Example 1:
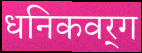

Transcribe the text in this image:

धनिकवर्ग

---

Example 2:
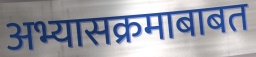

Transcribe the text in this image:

अभ्यासक्रमाबाबत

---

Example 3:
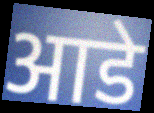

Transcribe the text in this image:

आडे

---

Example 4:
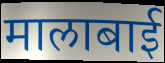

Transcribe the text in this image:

मालाबाई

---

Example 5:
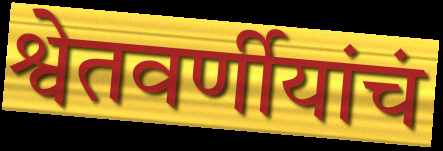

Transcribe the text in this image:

श्वेतवर्णीयांचं